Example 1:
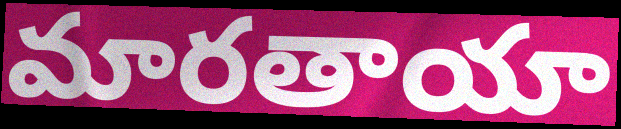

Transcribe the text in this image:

మారతాయా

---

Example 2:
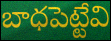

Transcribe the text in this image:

బాధపెట్టేవి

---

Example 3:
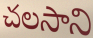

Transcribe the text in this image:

చలసాని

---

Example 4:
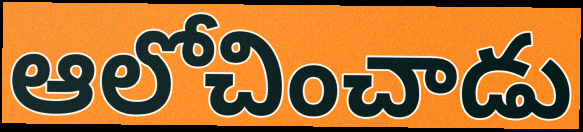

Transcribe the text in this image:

ఆలోచించాడు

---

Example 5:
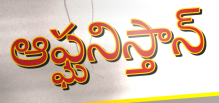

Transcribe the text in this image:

ఆఫ్ఘనిస్తాన్